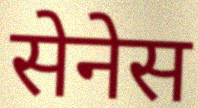
सेनेस